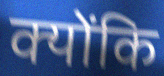
क्योंकि